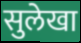
सुलेखा